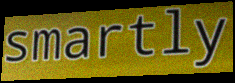
smartly